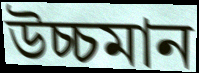
উচ্চমান